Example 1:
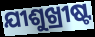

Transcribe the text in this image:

ଯୀଶୁଖ୍ରୀଷ୍ଟ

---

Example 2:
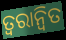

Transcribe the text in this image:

ତ୍ଵରାନ୍ବିତ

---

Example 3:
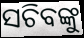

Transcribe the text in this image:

ସଚିବଙ୍କୁ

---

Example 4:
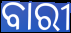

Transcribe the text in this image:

ବାରୀ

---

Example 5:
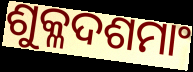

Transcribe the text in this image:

ଶୁକ୍ଳଦଶମାଂ